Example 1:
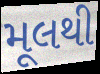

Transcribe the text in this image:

મૂલથી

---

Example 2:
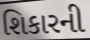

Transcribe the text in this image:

શિકારની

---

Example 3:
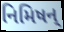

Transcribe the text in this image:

નિમિષન્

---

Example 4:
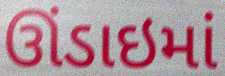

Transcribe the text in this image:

ઊંડાઇમાં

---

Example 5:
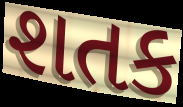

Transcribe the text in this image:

શતક